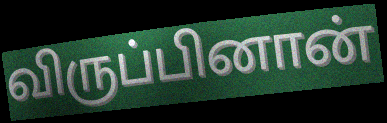
விருப்பினான்